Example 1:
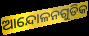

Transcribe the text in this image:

ଆନ୍ଦୋଳନଗୁଡିକ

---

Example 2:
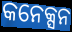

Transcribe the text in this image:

କନେକ୍ସନ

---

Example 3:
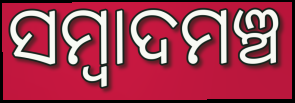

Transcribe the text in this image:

ସମ୍ୱାଦମଞ୍ଚ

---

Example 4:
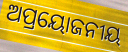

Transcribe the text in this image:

ଅପ୍ରୟୋଜନୀୟ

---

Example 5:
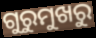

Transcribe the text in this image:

ଗୁରୁମୁଖରୁ